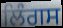
ਲਿੰਗਸ